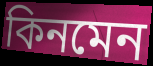
কিনমেন